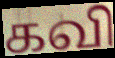
கவி